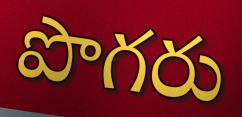
పొగరు